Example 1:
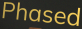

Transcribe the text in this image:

Phased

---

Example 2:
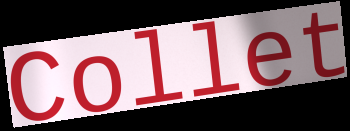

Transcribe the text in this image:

Collet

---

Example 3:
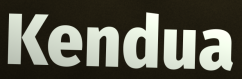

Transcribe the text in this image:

Kendua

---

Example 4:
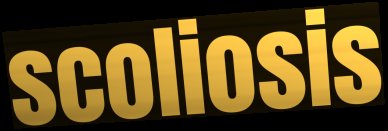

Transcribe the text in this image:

scoliosis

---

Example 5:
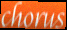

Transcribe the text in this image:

chorus